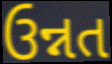
ઉન્નત